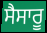
ਸੈਸਾਰੂ